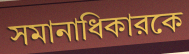
সমানাধিকারকে